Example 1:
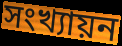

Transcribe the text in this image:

সংখ্যায়ন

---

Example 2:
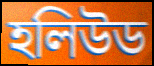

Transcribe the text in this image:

হলিউড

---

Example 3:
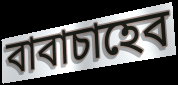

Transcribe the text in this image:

বাবাচাহেব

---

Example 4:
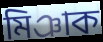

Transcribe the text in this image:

মিঞাক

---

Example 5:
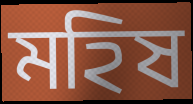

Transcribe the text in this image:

মহিষ